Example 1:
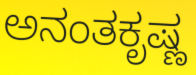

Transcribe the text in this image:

ಅನಂತಕೃಷ್ಣ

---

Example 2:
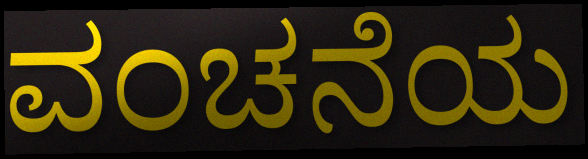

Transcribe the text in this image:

ವಂಚನೆಯ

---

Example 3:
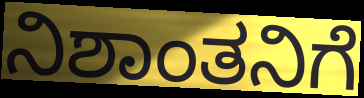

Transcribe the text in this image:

ನಿಶಾಂತನಿಗೆ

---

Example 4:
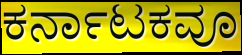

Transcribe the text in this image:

ಕರ್ನಾಟಕವೂ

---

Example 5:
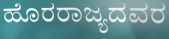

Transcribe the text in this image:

ಹೊರರಾಜ್ಯದವರ